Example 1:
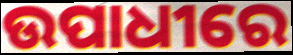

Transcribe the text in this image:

ଉପାଧୀରେ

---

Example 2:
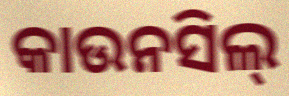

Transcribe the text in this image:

କାଉନସିଲ୍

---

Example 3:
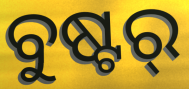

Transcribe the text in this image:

ବୁଷ୍ଟର୍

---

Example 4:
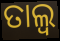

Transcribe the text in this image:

ତାଲ୍ୱ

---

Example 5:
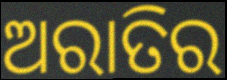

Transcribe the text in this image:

ଅରାତିର